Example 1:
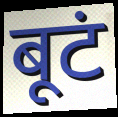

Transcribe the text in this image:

बूटं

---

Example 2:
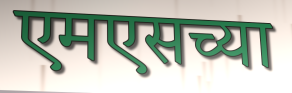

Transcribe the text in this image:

एमएसच्या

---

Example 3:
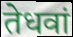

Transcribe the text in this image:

तेधवां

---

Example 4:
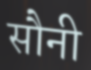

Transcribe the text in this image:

सौनी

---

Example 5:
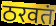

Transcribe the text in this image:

ठरवतं